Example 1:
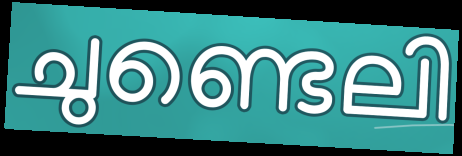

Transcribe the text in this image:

ചുണ്ടെലി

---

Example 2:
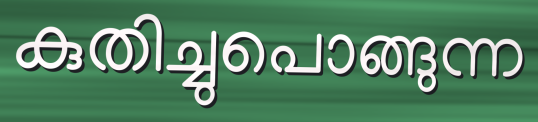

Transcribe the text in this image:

കുതിച്ചുപൊങ്ങുന്ന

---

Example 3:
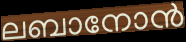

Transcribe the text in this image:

ലബാനോൻ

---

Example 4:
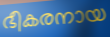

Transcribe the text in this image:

ഭീകരനായ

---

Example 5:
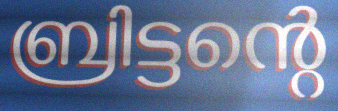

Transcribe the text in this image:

ബ്രിട്ടന്റെ